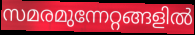
സമരമുന്നേറ്റങ്ങളിൽ